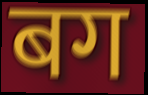
बग